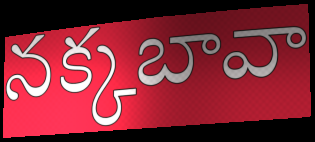
నక్కబావా